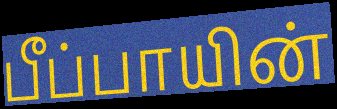
பீப்பாயின்